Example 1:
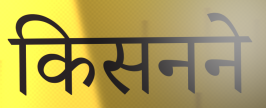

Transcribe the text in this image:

किसनने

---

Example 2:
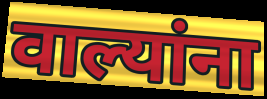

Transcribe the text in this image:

वाल्यांना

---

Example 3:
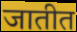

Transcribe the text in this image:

जातीत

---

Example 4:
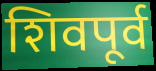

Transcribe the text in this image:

शिवपूर्व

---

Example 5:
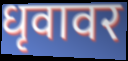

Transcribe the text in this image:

धृवावर